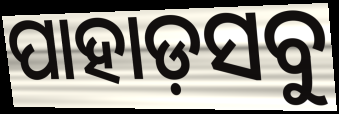
ପାହାଡ଼ସବୁ